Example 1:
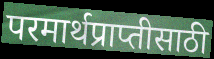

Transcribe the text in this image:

परमार्थप्राप्तीसाठी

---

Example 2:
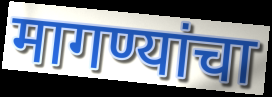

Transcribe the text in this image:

मागण्यांचा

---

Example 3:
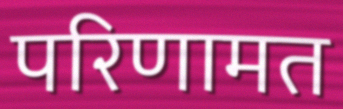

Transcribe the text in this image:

परिणामत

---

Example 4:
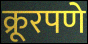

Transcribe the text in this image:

क्रूरपणे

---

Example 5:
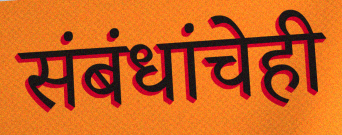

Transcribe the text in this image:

संबंधांचेही